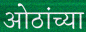
ओठांच्या